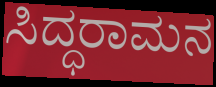
ಸಿದ್ಧರಾಮನ